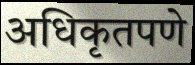
अधिकृतपणे